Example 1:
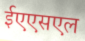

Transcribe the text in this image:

ईएएसएल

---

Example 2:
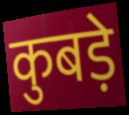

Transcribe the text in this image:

कुबड़े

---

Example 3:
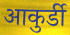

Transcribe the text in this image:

आकुर्डी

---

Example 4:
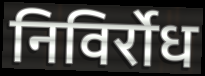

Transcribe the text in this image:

निविर्रोध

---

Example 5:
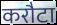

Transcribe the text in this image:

करौटा